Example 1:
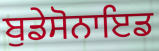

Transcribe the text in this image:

ਬੁਡੇਸੋਨਾਇਡ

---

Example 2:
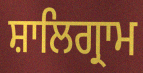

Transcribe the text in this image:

ਸ਼ਾਲਿਗ੍ਰਾਮ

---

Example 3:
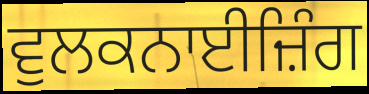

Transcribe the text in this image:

ਵੁਲਕਨਾਈਜ਼ਿੰਗ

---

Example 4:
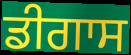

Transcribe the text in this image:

ਡੀਗਾਸ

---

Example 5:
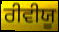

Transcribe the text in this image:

ਰੀਵੀਯੂ